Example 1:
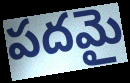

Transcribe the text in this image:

పదమై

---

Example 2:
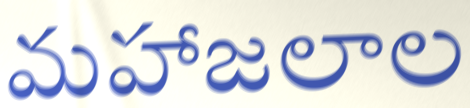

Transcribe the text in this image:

మహాజలాల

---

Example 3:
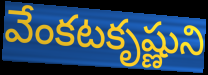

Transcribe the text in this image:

వేంకటకృష్ణుని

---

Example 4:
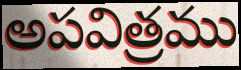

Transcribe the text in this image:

అపవిత్రము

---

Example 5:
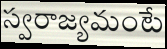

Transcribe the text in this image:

స్వరాజ్యమంటే